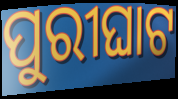
ପୁରୀଘାଟ